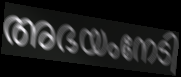
അഭയംനേടി